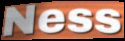
Ness